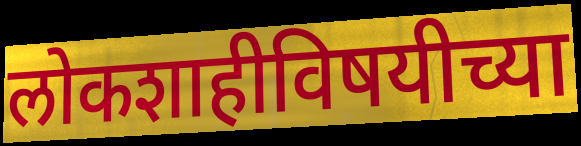
लोकशाहीविषयीच्या